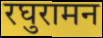
रघुरामन